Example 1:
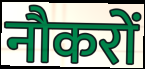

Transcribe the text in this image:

नौकरों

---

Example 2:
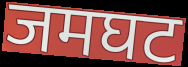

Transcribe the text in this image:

जमघट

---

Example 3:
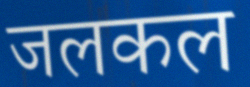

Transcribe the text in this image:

जलकल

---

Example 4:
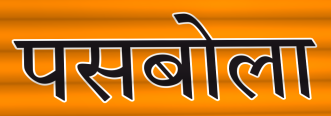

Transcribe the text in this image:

पसबोला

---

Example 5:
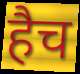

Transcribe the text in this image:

हैच